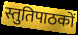
स्तुतिपाठकों